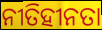
ନୀତିହୀନତା